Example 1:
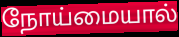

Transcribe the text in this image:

நோய்மையால்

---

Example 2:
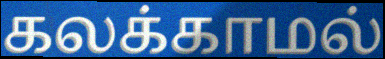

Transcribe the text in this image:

கலக்காமல்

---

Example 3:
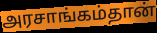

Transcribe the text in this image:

அரசாங்கம்தான்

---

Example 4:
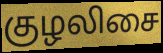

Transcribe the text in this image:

குழலிசை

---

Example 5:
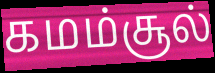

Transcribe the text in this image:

கமம்சூல்